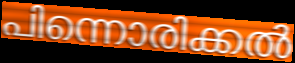
പിന്നൊരിക്കൽ